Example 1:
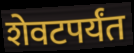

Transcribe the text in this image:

शेवटपर्यंत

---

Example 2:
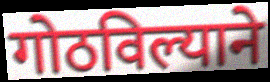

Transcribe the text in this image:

गोठविल्याने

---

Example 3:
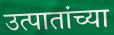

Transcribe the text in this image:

उत्पातांच्या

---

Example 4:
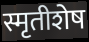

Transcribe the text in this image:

स्मृतीशेष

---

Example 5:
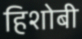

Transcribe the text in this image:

हिशोबी